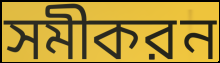
সমীকরন